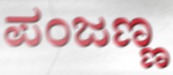
ಪಂಜಣ್ಣ